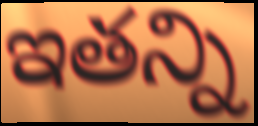
ఇతన్ని